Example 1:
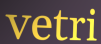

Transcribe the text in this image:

vetri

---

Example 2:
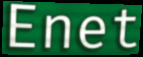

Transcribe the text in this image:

Enet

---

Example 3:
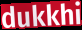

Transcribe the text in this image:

dukkhi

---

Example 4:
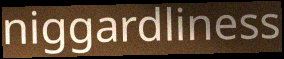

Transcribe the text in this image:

niggardliness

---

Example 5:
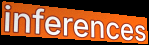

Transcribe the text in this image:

inferences